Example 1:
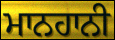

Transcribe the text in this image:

ਮਾਨਹਾਨੀ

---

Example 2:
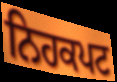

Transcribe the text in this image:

ਨਿਹਕਪਟ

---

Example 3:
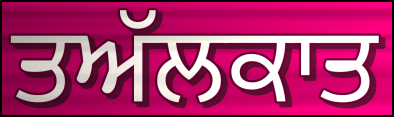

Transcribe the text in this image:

ਤਅੱਲਕਾਤ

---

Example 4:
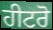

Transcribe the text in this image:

ਹੀਟਰੋ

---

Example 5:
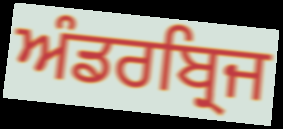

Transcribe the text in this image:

ਅੰਡਰਬ੍ਰਿਜ